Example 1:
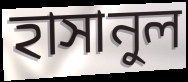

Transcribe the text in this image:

হাসানুল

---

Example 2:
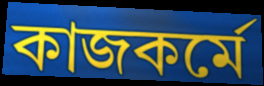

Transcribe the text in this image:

কাজকর্মে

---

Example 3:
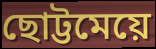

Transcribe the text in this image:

ছোট্টমেয়ে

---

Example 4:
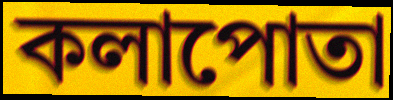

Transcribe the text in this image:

কলাপোতা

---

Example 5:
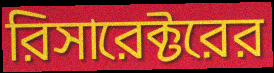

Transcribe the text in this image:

রিসারেক্টরের